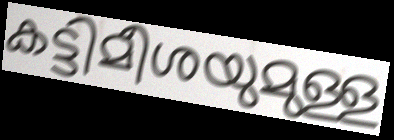
കട്ടിമീശയുമുള്ള